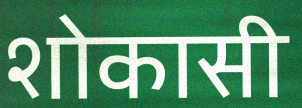
शोकासी